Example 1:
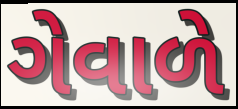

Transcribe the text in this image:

ગેવાળે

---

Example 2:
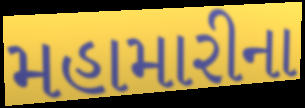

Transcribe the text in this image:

મહામારીના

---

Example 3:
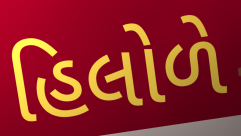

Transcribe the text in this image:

હિલોળે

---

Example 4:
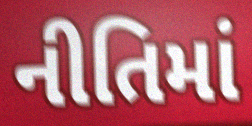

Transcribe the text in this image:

નીતિમાં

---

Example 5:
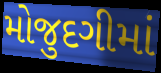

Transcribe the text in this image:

મોજુદગીમાં